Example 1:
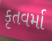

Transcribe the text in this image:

કૃતવર્મા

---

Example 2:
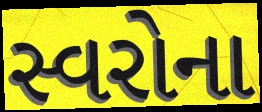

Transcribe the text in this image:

સ્વરોના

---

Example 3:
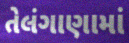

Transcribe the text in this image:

તેલંગાણામાં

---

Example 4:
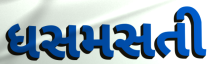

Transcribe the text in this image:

ધસમસતી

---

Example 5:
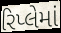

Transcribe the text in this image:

રિપ્લેમાં